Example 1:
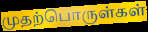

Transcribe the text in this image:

முதற்பொருள்கள்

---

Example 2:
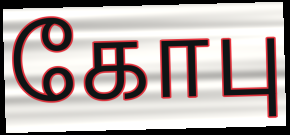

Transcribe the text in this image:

கோபு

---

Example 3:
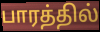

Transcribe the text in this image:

பாரத்தில்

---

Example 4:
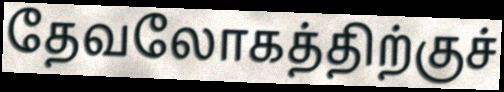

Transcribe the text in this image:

தேவலோகத்திற்குச்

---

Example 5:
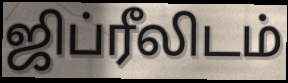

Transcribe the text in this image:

ஜிப்ரீலிடம்